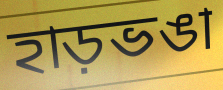
হাড়ভঙা